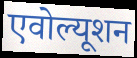
एवोल्यूशन